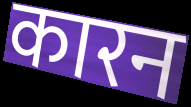
कारन